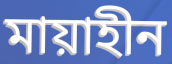
মায়াহীন